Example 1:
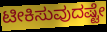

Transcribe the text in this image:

ಟೀಕಿಸುವುದಷ್ಟೇ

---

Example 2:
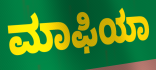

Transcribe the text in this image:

ಮಾಫಿಯಾ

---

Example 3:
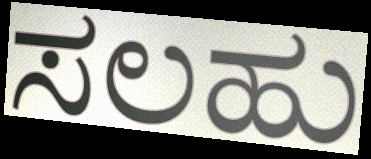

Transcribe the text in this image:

ಸಲಹು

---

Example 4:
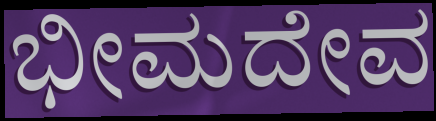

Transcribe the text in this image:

ಭೀಮದೇವ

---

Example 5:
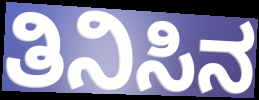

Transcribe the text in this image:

ತಿನಿಸಿನ